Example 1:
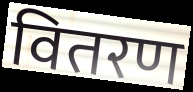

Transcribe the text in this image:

वितरण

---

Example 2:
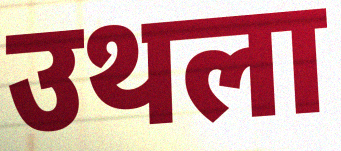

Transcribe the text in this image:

उथला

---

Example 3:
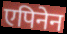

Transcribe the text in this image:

एपिनेन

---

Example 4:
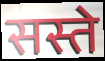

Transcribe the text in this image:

सस्ते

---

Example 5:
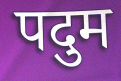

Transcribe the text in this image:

पदुम